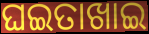
ଘଇତାଖାଇ